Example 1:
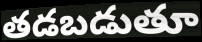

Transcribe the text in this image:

తడబడుతూ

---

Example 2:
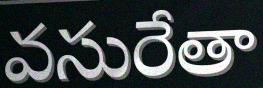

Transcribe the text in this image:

వసురేతా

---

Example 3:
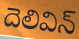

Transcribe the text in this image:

దెలివిన్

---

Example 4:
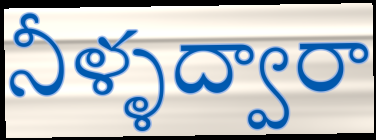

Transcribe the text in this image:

నీళ్ళద్వారా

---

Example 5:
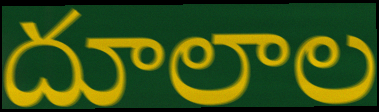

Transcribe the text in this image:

దూలాల